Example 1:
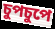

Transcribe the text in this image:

চুপচুপে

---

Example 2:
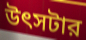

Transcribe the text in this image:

উৎসটার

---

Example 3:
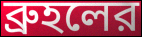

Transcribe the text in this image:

ব্রুহলের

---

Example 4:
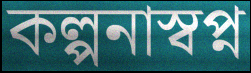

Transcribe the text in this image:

কল্পনাস্বপ্ন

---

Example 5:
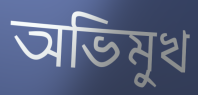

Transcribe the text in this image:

অভিমুখ